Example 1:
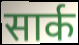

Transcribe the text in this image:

सार्क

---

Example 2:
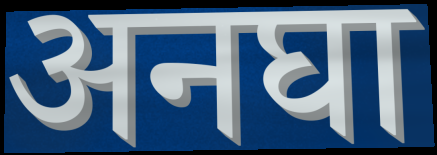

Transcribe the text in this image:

अनघा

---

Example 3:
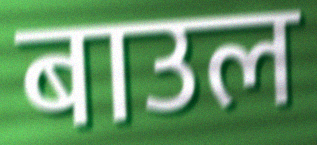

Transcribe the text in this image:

बाउल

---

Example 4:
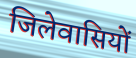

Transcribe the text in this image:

जिलेवासियों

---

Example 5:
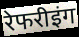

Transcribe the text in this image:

रेफरीइंग